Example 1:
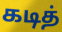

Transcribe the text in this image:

கடித்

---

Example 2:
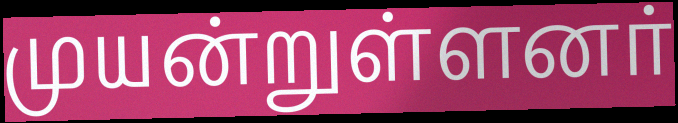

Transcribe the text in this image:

முயன்றுள்ளனர்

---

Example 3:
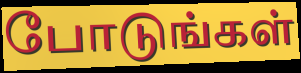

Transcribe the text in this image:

போடுங்கள்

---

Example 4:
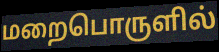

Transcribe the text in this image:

மறைபொருளில்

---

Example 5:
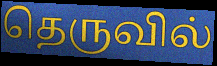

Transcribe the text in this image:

தெருவில்